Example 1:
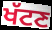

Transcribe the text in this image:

ਖੱਟਣ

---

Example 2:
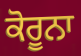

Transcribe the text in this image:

ਕੋਰੂਨਾ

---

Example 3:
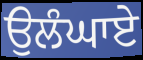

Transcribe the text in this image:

ਉਲੰਘਾਏ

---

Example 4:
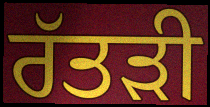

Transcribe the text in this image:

ਰੱਤੜੀ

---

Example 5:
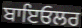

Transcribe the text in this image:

ਬਾਇਓਲਰ